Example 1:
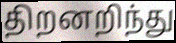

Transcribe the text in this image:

திறனறிந்து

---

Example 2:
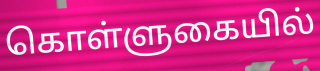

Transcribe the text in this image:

கொள்ளுகையில்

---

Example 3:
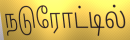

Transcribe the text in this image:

நடுரோட்டில்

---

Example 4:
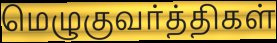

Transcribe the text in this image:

மெழுகுவர்த்திகள்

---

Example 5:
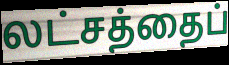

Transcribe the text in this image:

லட்சத்தைப்